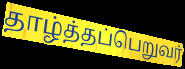
தாழ்த்தப்பெறுவர்